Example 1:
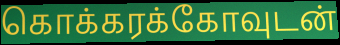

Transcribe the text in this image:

கொக்கரக்கோவுடன்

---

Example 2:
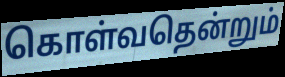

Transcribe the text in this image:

கொள்வதென்றும்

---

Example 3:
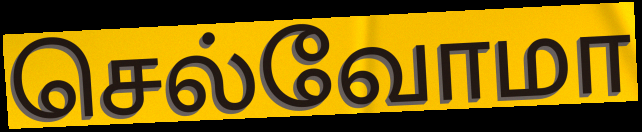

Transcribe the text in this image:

செல்வோமா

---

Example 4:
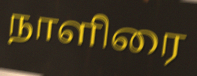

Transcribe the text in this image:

நாளிரை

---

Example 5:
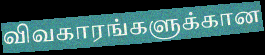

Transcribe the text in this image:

விவகாரங்களுக்கான